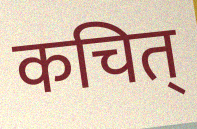
कचित्